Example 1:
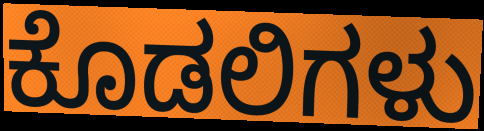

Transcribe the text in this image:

ಕೊಡಲಿಗಳು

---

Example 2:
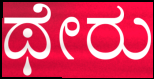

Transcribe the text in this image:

ಥೇರು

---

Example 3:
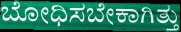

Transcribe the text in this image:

ಬೋಧಿಸಬೇಕಾಗಿತ್ತು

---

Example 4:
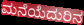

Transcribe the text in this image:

ಮನೆಯೆದುರಿನ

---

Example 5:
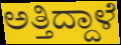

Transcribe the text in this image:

ಅತ್ತಿದ್ದಾಳೆ